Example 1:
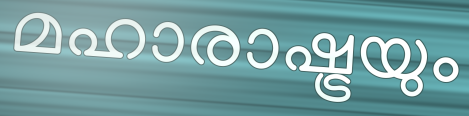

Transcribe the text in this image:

മഹാരാഷ്ട്രയും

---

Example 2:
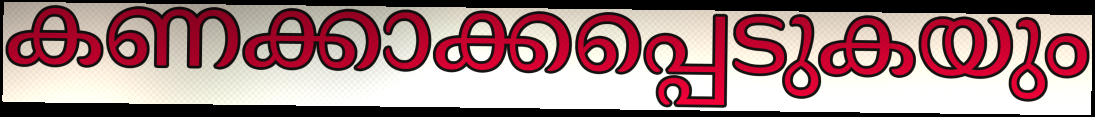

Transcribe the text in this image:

കണക്കാക്കപ്പെടുകയും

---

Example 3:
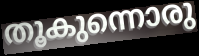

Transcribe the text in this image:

തൂകുന്നൊരു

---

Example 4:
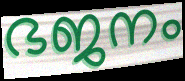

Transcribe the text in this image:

ഭജനം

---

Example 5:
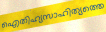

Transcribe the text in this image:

ഐതിഹ്യസാഹിത്യത്തെ